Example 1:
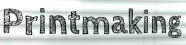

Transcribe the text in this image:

Printmaking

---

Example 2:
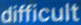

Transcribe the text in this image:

difficult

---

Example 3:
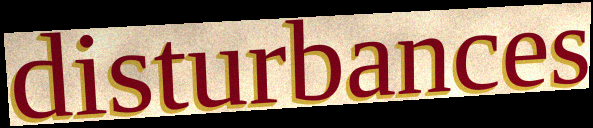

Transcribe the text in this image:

disturbances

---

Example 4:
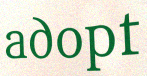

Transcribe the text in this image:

adopt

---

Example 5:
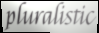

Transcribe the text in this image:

pluralistic